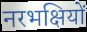
नरभक्षियों